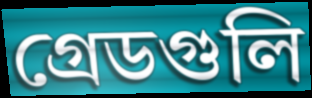
গ্রেডগুলি